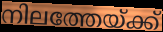
നിലത്തേയ്ക്ക്